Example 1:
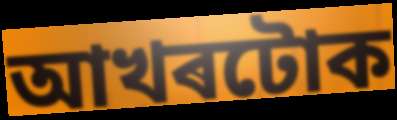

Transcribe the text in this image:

আখৰটোক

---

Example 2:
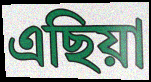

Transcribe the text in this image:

এছিয়া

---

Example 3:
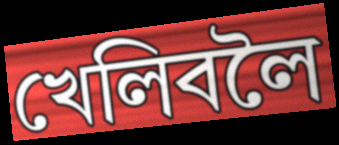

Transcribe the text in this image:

খেলিবলৈ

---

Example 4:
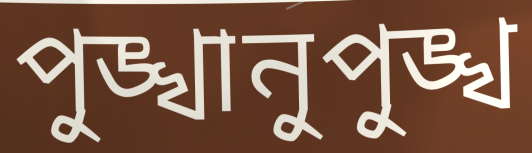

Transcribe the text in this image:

পুঙ্খানুপুঙ্খ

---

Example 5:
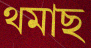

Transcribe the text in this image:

থমাছ